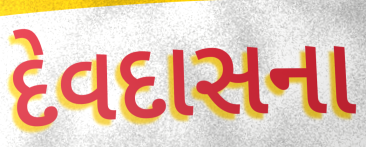
દેવદાસના